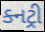
ક્નટ્રી